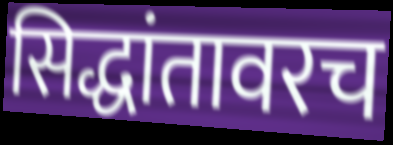
सिद्धांतावरच